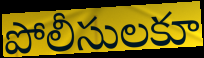
పోలీసులకూ